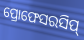
ପ୍ରୋଫେସରସିପ୍